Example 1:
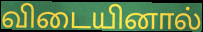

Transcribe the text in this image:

விடையினால்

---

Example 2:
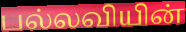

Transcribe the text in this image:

பல்லவியின்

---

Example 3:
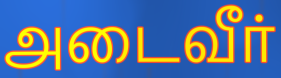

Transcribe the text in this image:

அடைவீர்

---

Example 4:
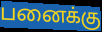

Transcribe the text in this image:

பனைக்கு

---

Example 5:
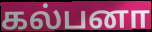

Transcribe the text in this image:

கல்பனா